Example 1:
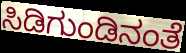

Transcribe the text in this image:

ಸಿಡಿಗುಂಡಿನಂತೆ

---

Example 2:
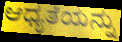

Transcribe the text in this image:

ಆಧ್ಯತೆಯನ್ನು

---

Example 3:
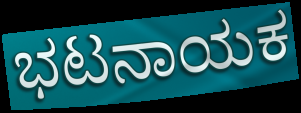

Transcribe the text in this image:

ಭಟನಾಯಕ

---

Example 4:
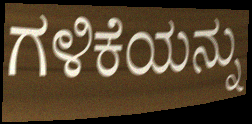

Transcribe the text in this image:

ಗಳಿಕೆಯನ್ನು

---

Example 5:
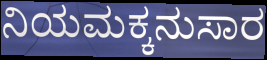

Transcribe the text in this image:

ನಿಯಮಕ್ಕನುಸಾರ